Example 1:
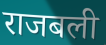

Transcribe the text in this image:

राजबली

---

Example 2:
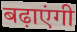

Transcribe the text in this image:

बढ़ाएंगी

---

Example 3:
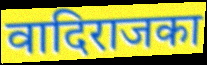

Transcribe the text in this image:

वादिराजका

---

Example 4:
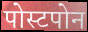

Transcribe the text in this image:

पोस्टपोन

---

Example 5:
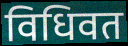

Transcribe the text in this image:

विधिवत